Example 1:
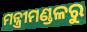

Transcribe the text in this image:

ମନ୍ତ୍ରୀମଣ୍ଡଳରୁ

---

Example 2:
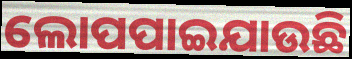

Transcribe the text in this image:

ଲୋପପାଇଯାଉଛି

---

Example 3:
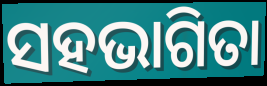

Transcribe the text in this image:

ସହଭାଗିତା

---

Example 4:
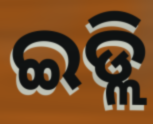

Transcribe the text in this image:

ଇଡ୍ଲି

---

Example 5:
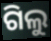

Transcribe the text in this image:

ଗିଲୁ